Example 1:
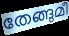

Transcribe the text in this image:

തേങ്ങുമീ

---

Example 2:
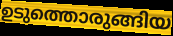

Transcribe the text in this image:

ഉടുത്തൊരുങ്ങിയ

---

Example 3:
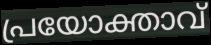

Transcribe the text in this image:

പ്രയോക്താവ്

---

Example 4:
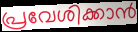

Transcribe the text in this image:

പ്രവേശിക്കാൻ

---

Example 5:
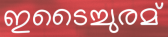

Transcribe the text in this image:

ഇടൈച്ചുരമ്